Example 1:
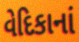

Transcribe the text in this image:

વેદિકાનાં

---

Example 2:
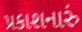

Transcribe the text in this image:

પ્રકાશનારું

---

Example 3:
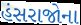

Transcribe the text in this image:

હંસરાજોના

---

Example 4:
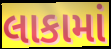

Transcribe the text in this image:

લાકામાં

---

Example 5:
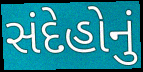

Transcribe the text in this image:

સંદેહોનું